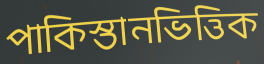
পাকিস্তানভিত্তিক